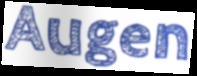
Augen